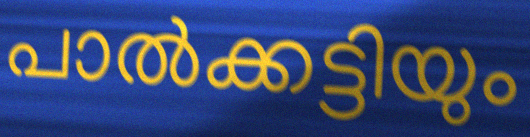
പാൽക്കട്ടിയും